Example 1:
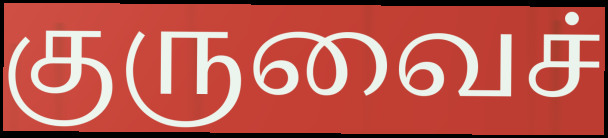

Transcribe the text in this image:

குருவைச்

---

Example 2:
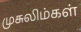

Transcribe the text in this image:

முசுலிம்கள்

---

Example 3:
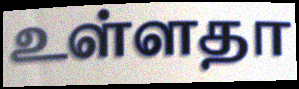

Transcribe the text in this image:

உள்ளதா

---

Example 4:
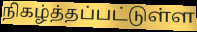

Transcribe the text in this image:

நிகழ்த்தப்பட்டுள்ள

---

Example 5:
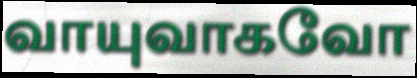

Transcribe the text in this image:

வாயுவாகவோ